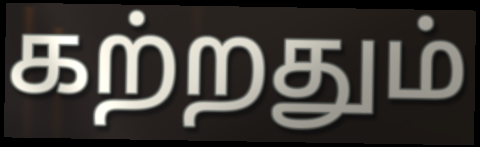
கற்றதும்